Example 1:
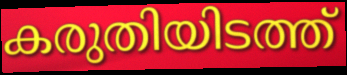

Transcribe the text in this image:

കരുതിയിടത്ത്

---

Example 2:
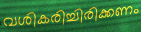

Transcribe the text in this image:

വശികരിച്ചിരിക്കണം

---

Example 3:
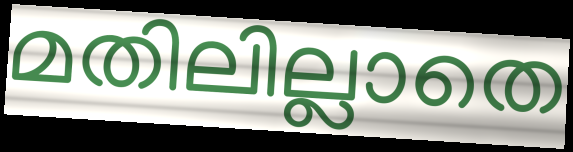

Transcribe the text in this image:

മതിലില്ലാതെ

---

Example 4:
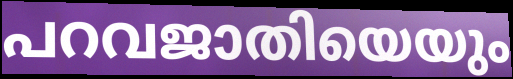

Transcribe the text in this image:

പറവജാതിയെയും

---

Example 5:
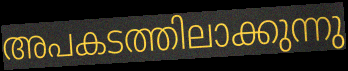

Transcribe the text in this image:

അപകടത്തിലാക്കുന്നു